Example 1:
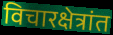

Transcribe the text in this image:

विचारक्षेत्रांत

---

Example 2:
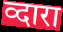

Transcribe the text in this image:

व्दारा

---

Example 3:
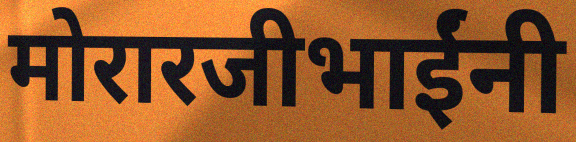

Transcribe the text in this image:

मोरारजीभाईंनी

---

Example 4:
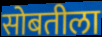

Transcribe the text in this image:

सोबतीला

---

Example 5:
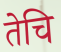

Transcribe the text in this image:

तेचि